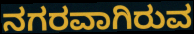
ನಗರವಾಗಿರುವ